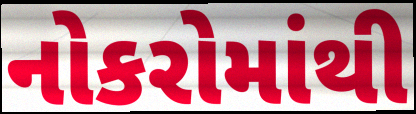
નોકરોમાંથી